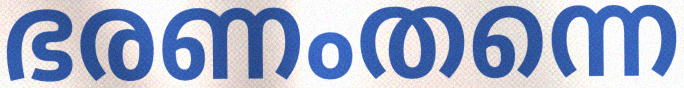
ഭരണംതന്നെ